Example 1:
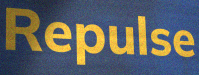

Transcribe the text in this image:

Repulse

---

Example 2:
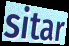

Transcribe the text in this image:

sitar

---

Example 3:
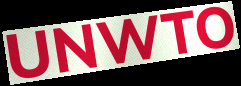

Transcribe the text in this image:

UNWTO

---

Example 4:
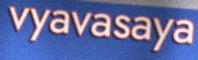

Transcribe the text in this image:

vyavasaya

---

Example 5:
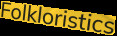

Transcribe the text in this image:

Folkloristics